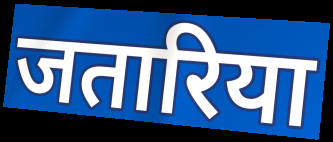
जतारिया